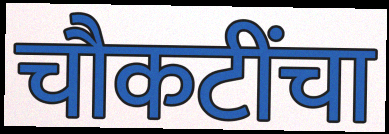
चौकटींचा